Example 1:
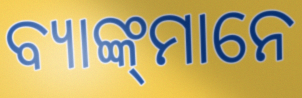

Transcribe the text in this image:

ବ୍ୟାଙ୍କ୍‌ମାନେ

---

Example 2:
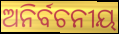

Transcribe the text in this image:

ଅନିର୍ବଚନୀୟ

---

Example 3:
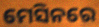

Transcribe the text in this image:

ମେସିନରେ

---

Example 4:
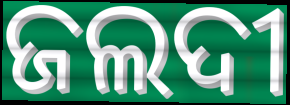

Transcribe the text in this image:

ଜଲଦୀ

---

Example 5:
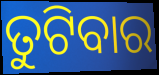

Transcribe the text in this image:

ତୁଟିବାର